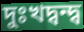
দুঃখদ্বন্দ্ব